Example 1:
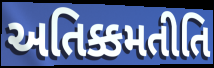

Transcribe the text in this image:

અતિક્કમતીતિ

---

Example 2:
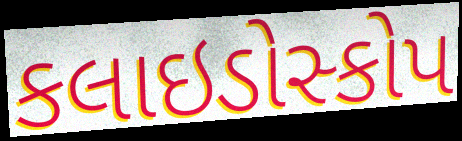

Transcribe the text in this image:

કલાઇડોસ્કોપ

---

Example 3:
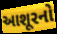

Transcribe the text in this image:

આશૂરનો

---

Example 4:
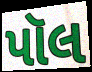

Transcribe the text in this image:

પૉલ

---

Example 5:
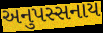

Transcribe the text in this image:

અનુપસ્સનાય